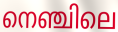
നെഞ്ചിലെ